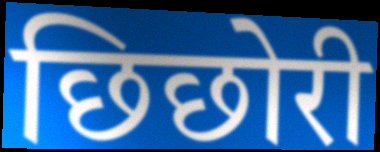
छिछोरी